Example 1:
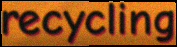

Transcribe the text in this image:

recycling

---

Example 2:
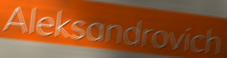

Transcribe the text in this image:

Aleksandrovich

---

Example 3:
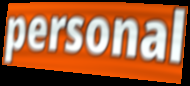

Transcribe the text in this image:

personal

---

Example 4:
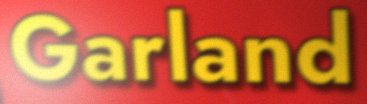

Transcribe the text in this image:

Garland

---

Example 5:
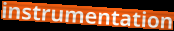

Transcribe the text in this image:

instrumentation